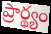
ప్రార్థ్యం